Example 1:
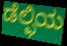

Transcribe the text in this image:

ಡೆಲ್ಫಿಯ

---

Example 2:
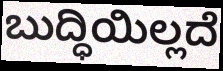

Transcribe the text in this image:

ಬುದ್ಧಿಯಿಲ್ಲದೆ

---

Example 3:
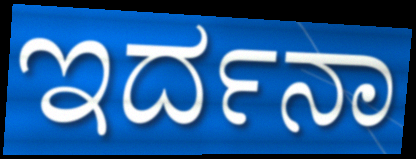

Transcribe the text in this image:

ಇರ್ದನಾ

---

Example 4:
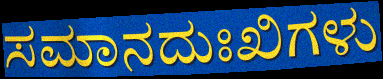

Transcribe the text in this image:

ಸಮಾನದುಃಖಿಗಳು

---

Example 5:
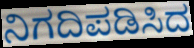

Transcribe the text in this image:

ನಿಗದಿಪಡಿಸಿದ